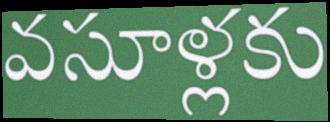
వసూళ్లకు